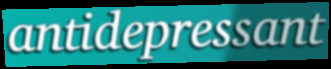
antidepressant